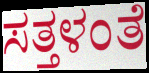
ಸತ್ತಳಂತೆ